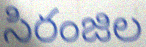
సిరంజిల